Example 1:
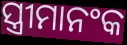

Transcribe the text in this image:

ସ୍ତ୍ରୀମାନଂକ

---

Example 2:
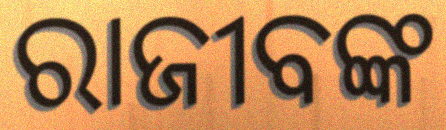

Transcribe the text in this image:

ରାଜୀବଙ୍କ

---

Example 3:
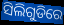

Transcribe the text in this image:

ସିଲିଗୁଡିରେ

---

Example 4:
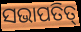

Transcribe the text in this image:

ସଭାପତିତ୍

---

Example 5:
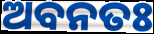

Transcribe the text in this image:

ଅବନତଃ